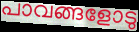
പാവങ്ങളോടു